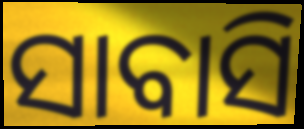
ସାବାସି